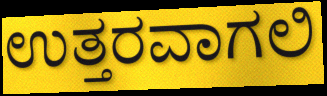
ಉತ್ತರವಾಗಲಿ